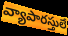
వ్యాపారస్తులే